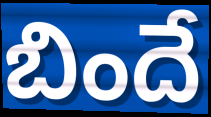
బిందే